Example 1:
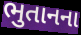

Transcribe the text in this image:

ભુતાનના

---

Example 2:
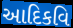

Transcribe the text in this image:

આદિકવિ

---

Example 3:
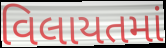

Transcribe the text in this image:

વિલાયતમાં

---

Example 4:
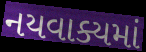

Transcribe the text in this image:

નયવાક્યમાં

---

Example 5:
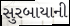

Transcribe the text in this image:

સુરબાયાની